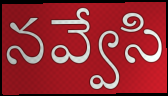
నవ్వేసి